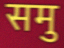
समु